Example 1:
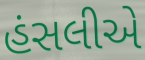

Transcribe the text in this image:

હંસલીએ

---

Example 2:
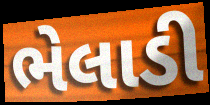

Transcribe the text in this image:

ભેલાડી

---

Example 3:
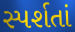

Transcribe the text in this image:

સ્પર્શતાં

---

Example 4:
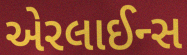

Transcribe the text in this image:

એરલાઈન્સ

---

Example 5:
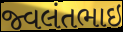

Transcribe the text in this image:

જ્વલંતભાઇ